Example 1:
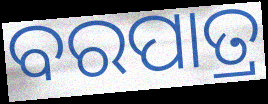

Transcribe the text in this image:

ବରପାତ୍ର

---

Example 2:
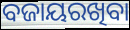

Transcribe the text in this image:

ବଜାୟରଖିବା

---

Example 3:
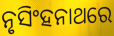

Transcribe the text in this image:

ନୃସିଂହନାଥରେ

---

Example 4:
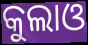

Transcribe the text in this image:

କୁଲାଓ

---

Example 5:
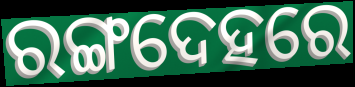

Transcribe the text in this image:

ରଙ୍ଗଦେହରେ